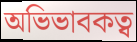
অভিভাবকত্ব